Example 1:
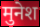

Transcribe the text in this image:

मुनेश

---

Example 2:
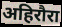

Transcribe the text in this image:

अहिरौरा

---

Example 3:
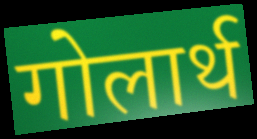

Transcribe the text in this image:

गोलार्थ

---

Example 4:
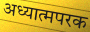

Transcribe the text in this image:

अध्यात्मपरक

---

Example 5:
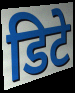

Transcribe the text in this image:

डिटे